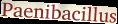
Paenibacillus